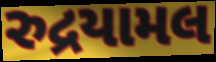
રુદ્રયામલ